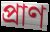
প্রাণ